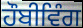
ਹੌਬੀਵਿੰਗ